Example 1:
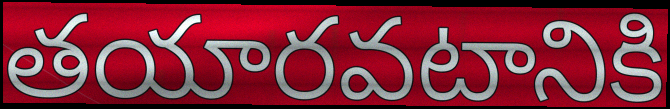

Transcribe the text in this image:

తయారవటానికి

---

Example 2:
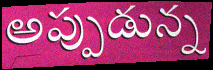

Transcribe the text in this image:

అప్పుడున్న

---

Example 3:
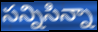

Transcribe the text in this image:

సన్నిసిన్నా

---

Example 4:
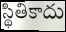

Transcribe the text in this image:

స్థితికాదు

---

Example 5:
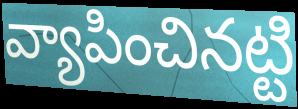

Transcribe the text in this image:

వ్యాపించినట్టి